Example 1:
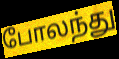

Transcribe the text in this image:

போலந்து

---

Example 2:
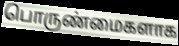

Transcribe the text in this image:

பொருண்மைகளாக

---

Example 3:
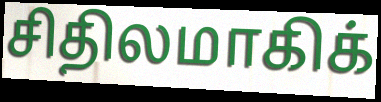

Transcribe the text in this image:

சிதிலமாகிக்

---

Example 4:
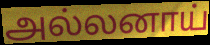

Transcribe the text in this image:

அல்லனாய்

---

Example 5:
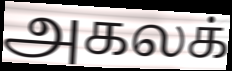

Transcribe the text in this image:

அகலக்